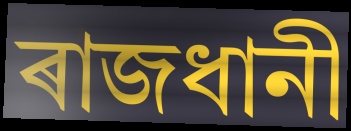
ৰাজধানী